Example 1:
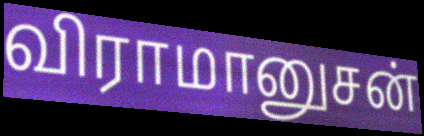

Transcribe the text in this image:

விராமானுசன்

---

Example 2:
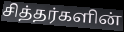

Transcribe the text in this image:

சித்தர்களின்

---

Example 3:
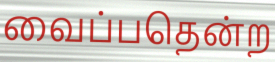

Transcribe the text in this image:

வைப்பதென்ற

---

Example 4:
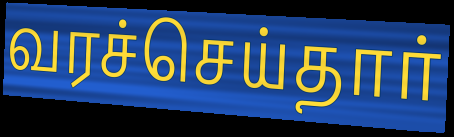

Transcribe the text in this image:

வரச்செய்தார்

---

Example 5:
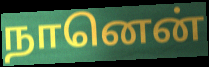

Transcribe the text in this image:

நானென்